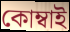
কোম্বাই